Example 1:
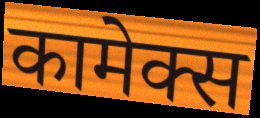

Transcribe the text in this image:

कामेक्स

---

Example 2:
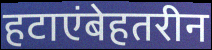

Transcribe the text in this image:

हटाएंबेहतरीन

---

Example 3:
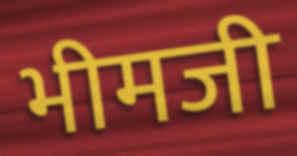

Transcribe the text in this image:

भीमजी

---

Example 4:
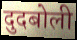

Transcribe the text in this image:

दुदबोली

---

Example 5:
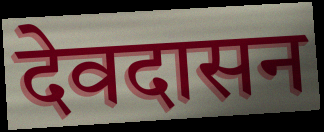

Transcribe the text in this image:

देवदासन